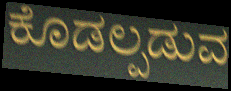
ಕೊಡಲ್ಪಡುವ